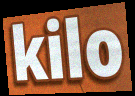
kilo